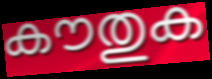
കൗതുക